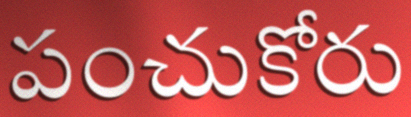
పంచుకోరు